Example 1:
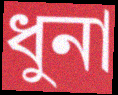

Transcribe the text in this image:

ধুনা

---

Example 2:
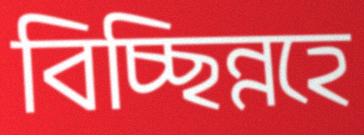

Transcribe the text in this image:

বিচ্ছিন্নহে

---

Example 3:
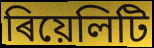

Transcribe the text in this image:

ৰিয়েলিটি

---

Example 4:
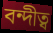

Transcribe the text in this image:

বন্দীত্ব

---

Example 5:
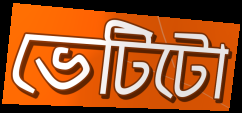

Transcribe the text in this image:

ভেটিটো